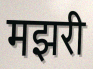
मझरी